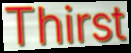
Thirst